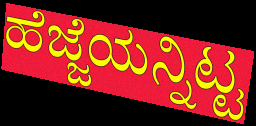
ಹೆಜ್ಜೆಯನ್ನಿಟ್ಟ